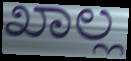
ಖಾಲ್ಲ